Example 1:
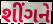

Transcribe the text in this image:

શીંગને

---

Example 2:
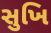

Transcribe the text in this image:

સુખિ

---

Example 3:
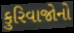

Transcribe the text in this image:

કુરિવાજોનો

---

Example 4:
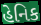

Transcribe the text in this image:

હેનિક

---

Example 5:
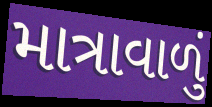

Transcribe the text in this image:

માત્રાવાળું